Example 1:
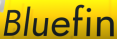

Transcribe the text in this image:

Bluefin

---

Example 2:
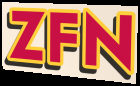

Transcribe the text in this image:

ZFN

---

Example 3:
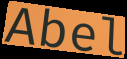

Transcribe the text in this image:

Abel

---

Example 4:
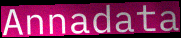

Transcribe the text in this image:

Annadata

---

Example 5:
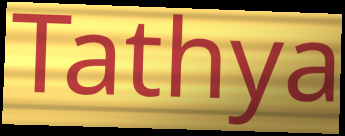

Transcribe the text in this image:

Tathya